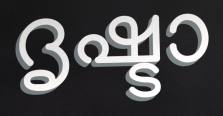
ദൃഷ്ടാ